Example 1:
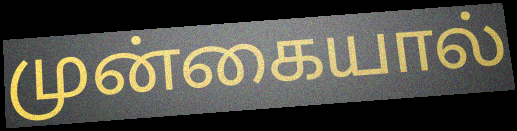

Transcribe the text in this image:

முன்கையால்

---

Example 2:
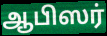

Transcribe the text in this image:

ஆபிஸர்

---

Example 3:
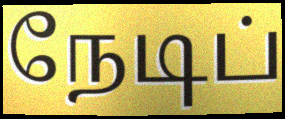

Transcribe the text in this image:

நேடிப்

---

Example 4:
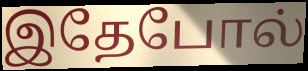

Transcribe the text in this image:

இதேபோல்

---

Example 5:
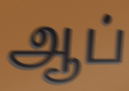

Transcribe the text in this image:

ஆப்